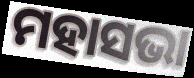
ମହାସଭା